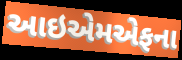
આઇએમએફના